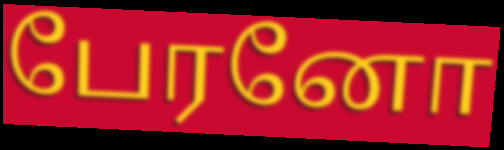
பேரனோ